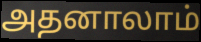
அதனாலாம்